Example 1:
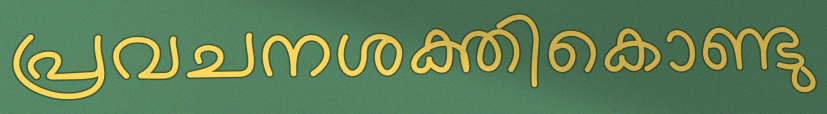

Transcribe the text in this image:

പ്രവചനശക്തികൊണ്ടു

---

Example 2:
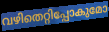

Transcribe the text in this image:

വഴിതെറ്റിപ്പോകുമോ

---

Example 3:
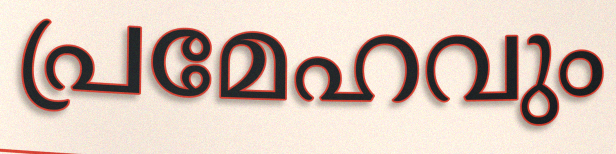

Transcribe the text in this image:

പ്രമേഹവും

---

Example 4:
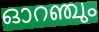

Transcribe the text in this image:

ഓറഞ്ചും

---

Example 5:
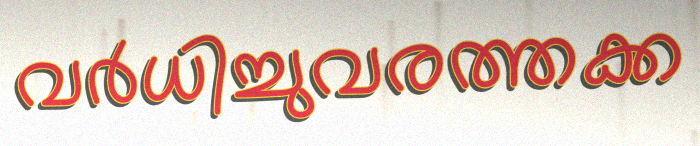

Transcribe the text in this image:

വർധിച്ചുവരത്തക്ക